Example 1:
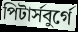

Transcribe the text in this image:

পিটাৰ্সবুৰ্গে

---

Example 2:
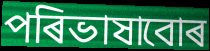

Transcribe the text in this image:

পৰিভাষাবোৰ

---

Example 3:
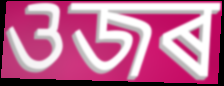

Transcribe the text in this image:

ওজৰ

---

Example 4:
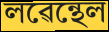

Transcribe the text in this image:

লৱেন্থেল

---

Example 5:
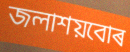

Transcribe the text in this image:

জলাশয়বোৰ